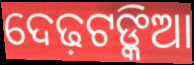
ଦେଢ଼ଟଙ୍କିଆ